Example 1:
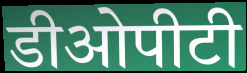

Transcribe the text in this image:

डीओपीटी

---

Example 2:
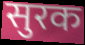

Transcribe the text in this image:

सुरक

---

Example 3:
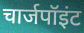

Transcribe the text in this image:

चार्जपॉइंट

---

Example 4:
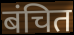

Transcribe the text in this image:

बंचित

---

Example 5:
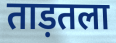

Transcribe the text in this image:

ताड़तला